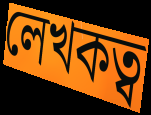
লেখকত্ব